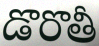
డొరొతీ